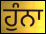
ਹੁੰਨਾ